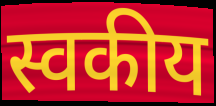
स्वकीय